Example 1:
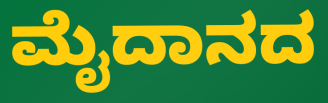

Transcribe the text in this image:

ಮೈದಾನದ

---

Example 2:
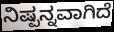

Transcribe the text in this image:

ನಿಷ್ಪನ್ನವಾಗಿದೆ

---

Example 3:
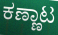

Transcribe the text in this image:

ಕಣ್ಣಾಟ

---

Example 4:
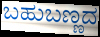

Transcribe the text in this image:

ಬಹುಬಣ್ಣದ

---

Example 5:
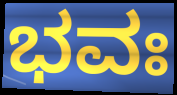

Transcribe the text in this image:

ಭವಃ